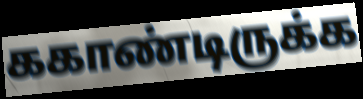
ககாண்டிருக்க